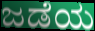
ಜಡೆಯ